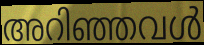
അറിഞ്ഞവൾ